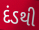
દંડથી